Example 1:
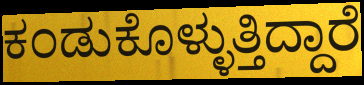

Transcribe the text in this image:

ಕಂಡುಕೊಳ್ಳುತ್ತಿದ್ದಾರೆ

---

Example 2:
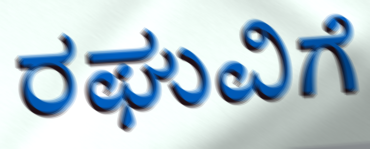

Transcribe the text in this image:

ರಘುವಿಗೆ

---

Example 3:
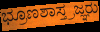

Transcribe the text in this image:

ಭ್ರೂಣಶಾಸ್ತ್ರಜ್ಞರು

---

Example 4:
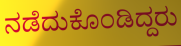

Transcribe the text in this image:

ನಡೆದುಕೊಂಡಿದ್ದರು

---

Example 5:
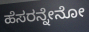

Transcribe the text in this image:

ಹೆಸರನ್ನೇನೋ